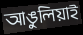
আঙুলিয়াই